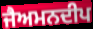
ਜੈਅਮਨਦੀਪ